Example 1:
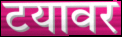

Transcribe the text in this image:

टयावर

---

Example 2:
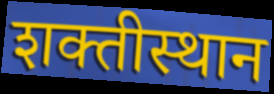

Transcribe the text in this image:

शक्तीस्थान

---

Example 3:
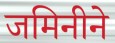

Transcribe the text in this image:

जमिनीने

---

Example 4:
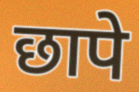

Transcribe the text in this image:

छापे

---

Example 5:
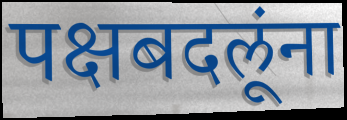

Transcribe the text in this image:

पक्षबदलूंना